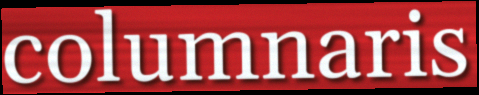
columnaris